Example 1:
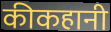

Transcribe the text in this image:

कीकहानी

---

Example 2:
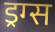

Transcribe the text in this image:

ड्रग्स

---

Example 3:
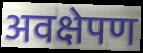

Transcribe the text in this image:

अवक्षेपण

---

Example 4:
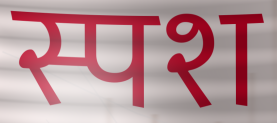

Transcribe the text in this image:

स्पश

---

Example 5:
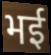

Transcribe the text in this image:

भई